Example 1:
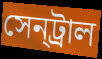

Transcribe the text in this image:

সেন্‌ট্রাল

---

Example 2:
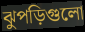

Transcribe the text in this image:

ঝুপড়িগুলো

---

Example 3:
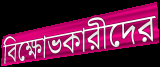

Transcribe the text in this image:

বিক্ষোভকারীদের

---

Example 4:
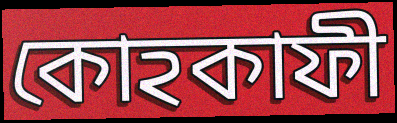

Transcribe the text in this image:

কোহকাফী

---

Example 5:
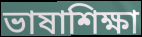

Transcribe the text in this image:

ভাষাশিক্ষা